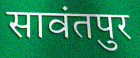
सावंतपुर